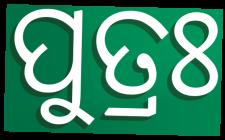
ପୁତ୍ରଃ